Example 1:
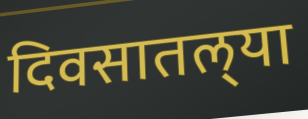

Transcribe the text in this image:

दिवसातल्या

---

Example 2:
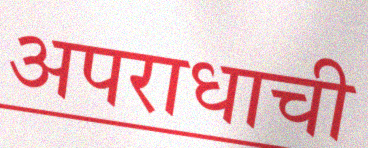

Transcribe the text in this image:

अपराधाची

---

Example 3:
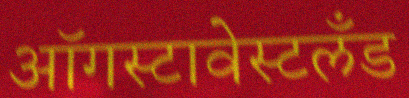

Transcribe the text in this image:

ऑगस्टावेस्टलँड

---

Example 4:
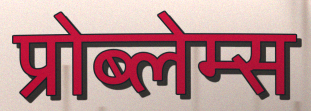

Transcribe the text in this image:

प्रोब्लेम्स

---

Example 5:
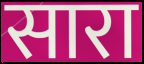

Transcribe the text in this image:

सारा